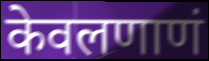
केवलणाणं